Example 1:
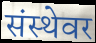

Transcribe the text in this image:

संस्थेवर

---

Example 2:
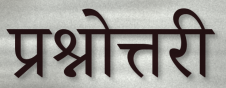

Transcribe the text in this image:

प्रश्नोत्तरी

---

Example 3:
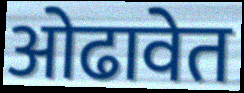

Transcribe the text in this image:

ओढावेत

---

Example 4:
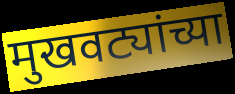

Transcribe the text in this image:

मुखवट्यांच्या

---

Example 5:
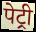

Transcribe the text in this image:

पेट्री